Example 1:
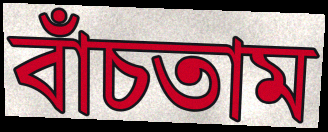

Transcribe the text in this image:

বাঁচতাম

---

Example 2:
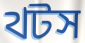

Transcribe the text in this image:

থটস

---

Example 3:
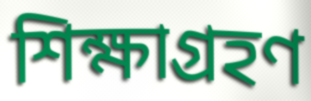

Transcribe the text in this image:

শিক্ষাগ্রহণ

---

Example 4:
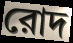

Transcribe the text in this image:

রোদ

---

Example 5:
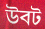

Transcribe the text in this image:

উবট